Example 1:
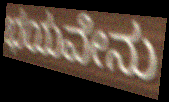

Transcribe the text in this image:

ಭಯವೇನು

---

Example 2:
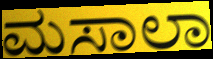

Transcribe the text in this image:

ಮಸಾಲಾ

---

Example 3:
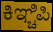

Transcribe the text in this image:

ಕಿಞ್ಚಿಪಿ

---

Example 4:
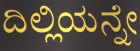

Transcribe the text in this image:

ದಿಲ್ಲಿಯನ್ನೇ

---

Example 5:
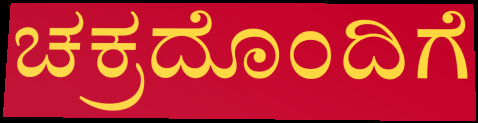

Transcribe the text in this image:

ಚಕ್ರದೊಂದಿಗೆ